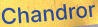
Chandror